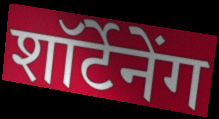
शॉर्टेनेंग